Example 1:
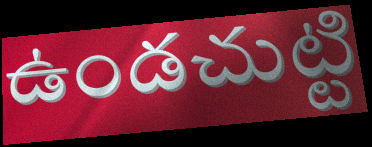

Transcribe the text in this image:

ఉండచుట్టి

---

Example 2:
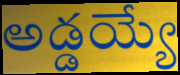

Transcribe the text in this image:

అడ్డయ్యే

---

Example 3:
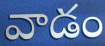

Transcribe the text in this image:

వాడం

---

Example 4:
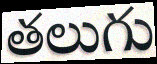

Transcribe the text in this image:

తలుగు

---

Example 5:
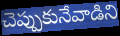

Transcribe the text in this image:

చెప్పుకునేవాడిని